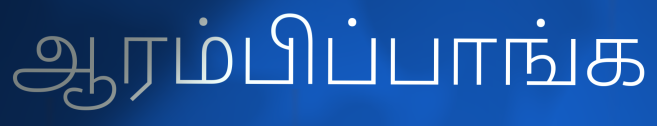
ஆரம்பிப்பாங்க